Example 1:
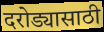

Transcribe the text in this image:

दरोड्यासाठी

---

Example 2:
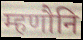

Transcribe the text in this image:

म्हणौनि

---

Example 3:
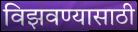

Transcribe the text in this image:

विझवण्यासाठी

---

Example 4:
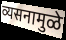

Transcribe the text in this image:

व्यसनामुळे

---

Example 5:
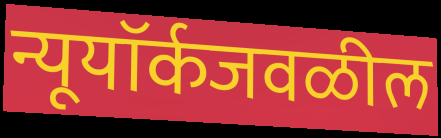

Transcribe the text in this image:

न्यूयॉर्कजवळील